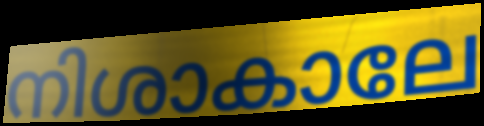
നിശാകാലേ